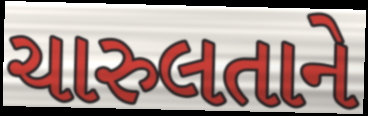
ચારુલતાને